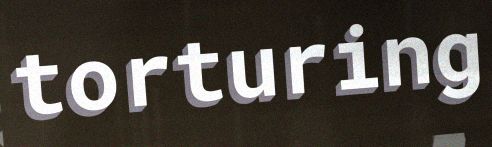
torturing